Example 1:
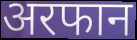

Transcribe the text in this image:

अरफान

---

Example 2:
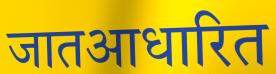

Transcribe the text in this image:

जातआधारित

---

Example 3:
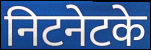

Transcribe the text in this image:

निटनेटके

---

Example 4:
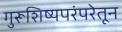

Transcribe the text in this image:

गुरूशिष्यपरंपरेतून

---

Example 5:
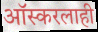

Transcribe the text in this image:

ऑस्करलाही